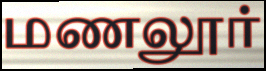
மணலூர்